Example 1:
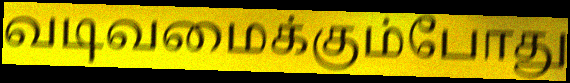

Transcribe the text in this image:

வடிவமைக்கும்போது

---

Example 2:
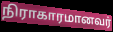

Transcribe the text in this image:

நிராகாரமானவர்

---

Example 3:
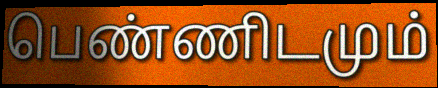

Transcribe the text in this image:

பெண்ணிடமும்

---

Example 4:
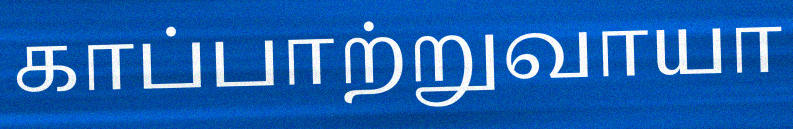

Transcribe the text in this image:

காப்பாற்றுவாயா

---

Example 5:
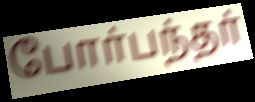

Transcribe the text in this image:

போர்பந்தர்